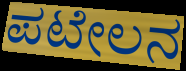
ಪಟೇಲನ